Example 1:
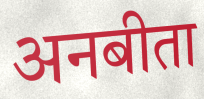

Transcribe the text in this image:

अनबीता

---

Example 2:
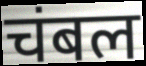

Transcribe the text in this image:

चंबल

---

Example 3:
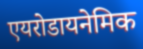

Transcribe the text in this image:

एयरोडायनेमिक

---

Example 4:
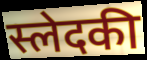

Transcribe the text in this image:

स्लेदकी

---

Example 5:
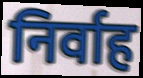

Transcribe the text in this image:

निर्वाह